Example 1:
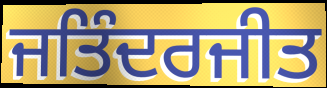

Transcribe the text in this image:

ਜਤਿੰਦਰਜੀਤ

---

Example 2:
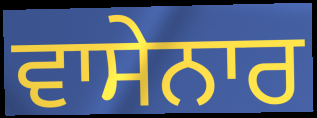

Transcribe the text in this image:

ਵਾਸੇਨਾਰ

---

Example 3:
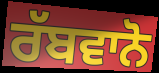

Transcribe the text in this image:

ਰੱਬਵਾਨੋ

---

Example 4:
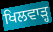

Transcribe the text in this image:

ਖਿਲਵਾੜ੍ਹ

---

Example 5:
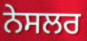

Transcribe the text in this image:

ਨੇਸਲਰ